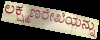
ಲಕ್ಷ್ಮಣರೇಖೆಯನ್ನು